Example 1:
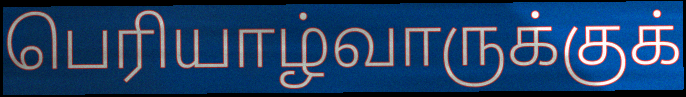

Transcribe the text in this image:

பெரியாழ்வாருக்குக்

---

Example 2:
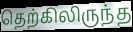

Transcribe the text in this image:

தெற்கிலிருந்த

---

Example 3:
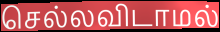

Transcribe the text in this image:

செல்லவிடாமல்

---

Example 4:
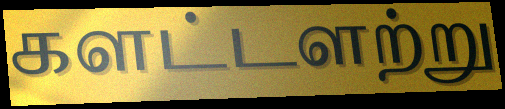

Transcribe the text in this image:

களட்டளற்று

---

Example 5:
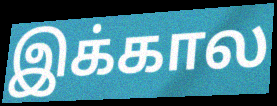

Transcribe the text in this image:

இக்கால